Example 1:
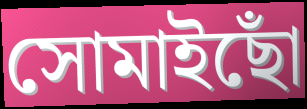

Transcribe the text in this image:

সোমাইছোঁ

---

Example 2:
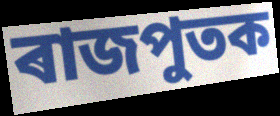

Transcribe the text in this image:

ৰাজপুতক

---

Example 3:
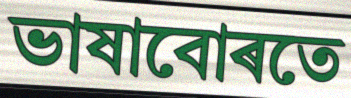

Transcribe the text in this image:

ভাষাবোৰতে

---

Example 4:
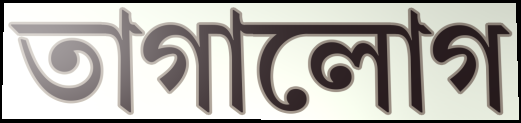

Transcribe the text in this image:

তাগালোগ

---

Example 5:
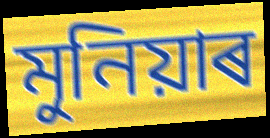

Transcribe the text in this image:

মুনিয়াৰ